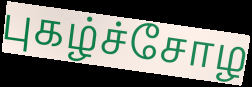
புகழ்ச்சோழ